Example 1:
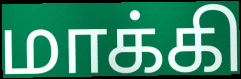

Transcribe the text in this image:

மாக்கி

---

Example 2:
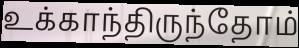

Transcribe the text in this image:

உக்காந்திருந்தோம்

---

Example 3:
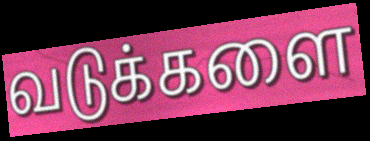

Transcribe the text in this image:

வடுக்களை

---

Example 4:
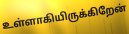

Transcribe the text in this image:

உள்ளாகியிருக்கிறேன்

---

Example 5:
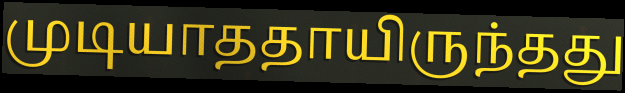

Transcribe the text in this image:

முடியாததாயிருந்தது